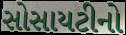
સોસાયટીનો